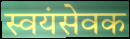
स्वयंसेवक